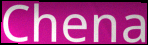
Chena